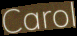
Carol